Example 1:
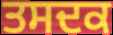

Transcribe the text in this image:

ਤਸਦਕ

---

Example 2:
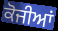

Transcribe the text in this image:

ਕੋਜੀਆਂ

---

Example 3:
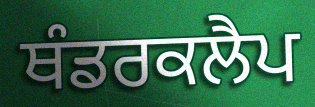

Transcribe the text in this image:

ਥੰਡਰਕਲੈਪ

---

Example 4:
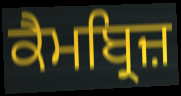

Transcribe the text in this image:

ਕੈਮਬ੍ਰਿਜ਼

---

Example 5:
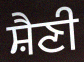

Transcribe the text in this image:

ਸ਼ੈਣੀ